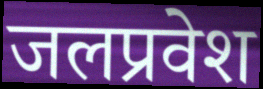
जलप्रवेश